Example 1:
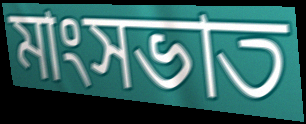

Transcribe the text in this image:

মাংসভাত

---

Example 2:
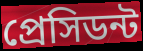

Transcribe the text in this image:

প্রেসিডন্ট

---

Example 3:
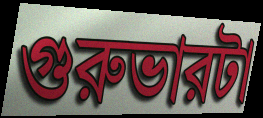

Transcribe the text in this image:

গুরুভারটা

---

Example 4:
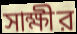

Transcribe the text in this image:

সাক্ষীর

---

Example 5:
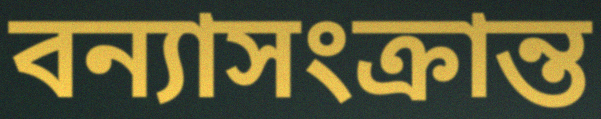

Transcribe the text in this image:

বন্যাসংক্রান্ত